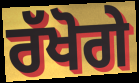
ਰੱਖੋਗੇ